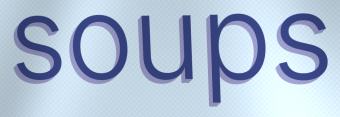
soups